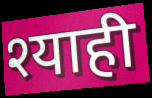
श्याही